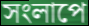
সংলাপে